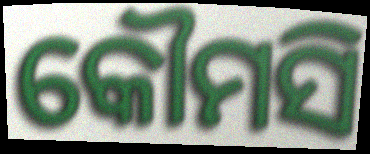
କୌମସି